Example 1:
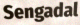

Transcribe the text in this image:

Sengadal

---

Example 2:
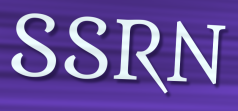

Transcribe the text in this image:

SSRN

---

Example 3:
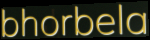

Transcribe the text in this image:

bhorbela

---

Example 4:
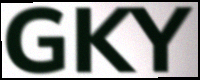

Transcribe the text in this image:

GKY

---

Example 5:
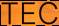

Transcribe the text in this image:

TEC